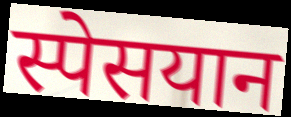
स्पेसयान